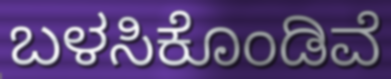
ಬಳಸಿಕೊಂಡಿವೆ